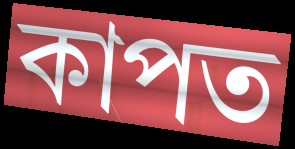
কাপত